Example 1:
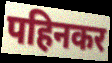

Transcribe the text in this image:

पहिनकर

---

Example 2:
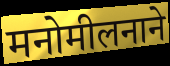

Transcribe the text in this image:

मनोमीलनाने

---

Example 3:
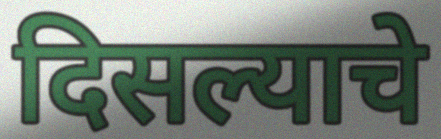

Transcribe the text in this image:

दिसल्याचे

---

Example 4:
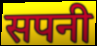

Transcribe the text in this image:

सपनी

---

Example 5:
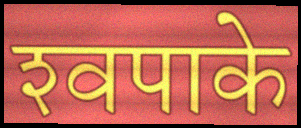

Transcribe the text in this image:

श्वपाके